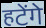
हटेंगे